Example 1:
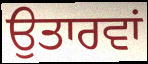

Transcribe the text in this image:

ਉਤਾਰਵਾਂ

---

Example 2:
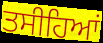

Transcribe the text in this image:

ਤਸੀਹਿਆਂ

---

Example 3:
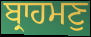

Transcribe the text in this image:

ਬ੍ਰਾਹਮਣੁ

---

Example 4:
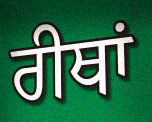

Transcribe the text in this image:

ਰੀਥਾਂ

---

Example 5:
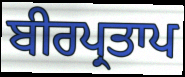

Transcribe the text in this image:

ਬੀਰਪ੍ਰਤਾਪ